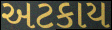
અટકાય